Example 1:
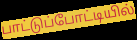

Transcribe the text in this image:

பாட்டுப்போட்டியில்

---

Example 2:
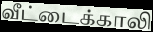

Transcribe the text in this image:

வீட்டைக்காலி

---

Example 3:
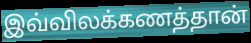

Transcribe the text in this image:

இவ்விலக்கணத்தான்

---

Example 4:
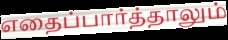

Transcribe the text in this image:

எதைப்பார்த்தாலும்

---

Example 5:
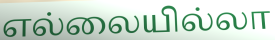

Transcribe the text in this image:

எல்லையில்லா